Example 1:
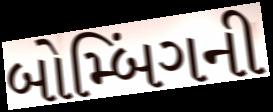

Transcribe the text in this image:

બોમ્બિંગની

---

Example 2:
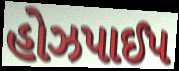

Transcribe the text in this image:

હોઝપાઈપ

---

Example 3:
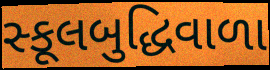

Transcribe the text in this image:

સ્કૂલબુદ્ધિવાળા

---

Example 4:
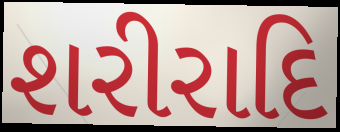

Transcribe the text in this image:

શરીરાદિ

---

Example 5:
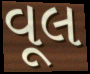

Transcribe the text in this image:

વૂલ